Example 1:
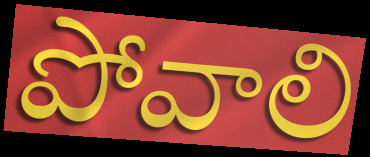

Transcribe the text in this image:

పోవాలి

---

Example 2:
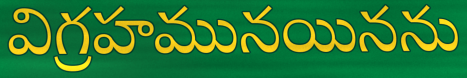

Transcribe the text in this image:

విగ్రహమునయినను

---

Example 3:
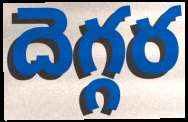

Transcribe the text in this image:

దెగ్గర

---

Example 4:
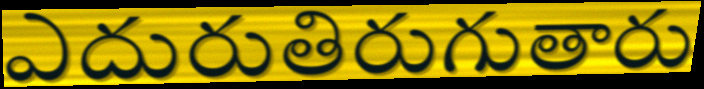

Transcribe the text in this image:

ఎదురుతిరుగుతారు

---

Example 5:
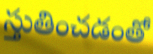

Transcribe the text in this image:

స్తుతించడంతో